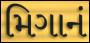
મિગાનં